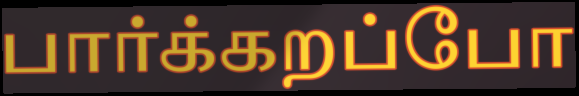
பார்க்கறப்போ